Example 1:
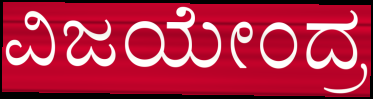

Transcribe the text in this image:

ವಿಜಯೇಂದ್ರ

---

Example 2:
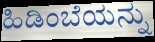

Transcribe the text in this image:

ಹಿಡಿಂಬೆಯನ್ನು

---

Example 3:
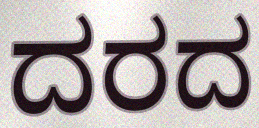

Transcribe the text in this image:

ದರದ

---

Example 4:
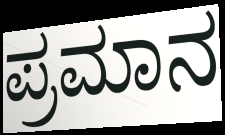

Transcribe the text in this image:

ಪ್ರಮಾನ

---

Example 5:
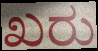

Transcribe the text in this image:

ಖರು